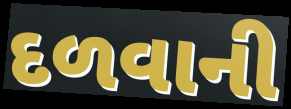
દળવાની